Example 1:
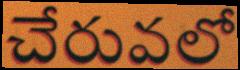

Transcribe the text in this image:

చేరువలో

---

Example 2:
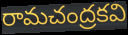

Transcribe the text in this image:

రామచంద్రకవి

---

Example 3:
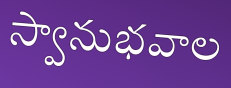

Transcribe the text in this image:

స్వానుభవాల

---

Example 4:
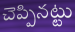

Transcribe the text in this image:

చెప్పినట్టు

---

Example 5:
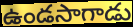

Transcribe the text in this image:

ఉండసాగాడు